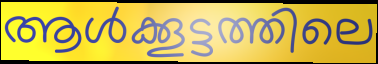
ആൾക്കൂട്ടത്തിലെ